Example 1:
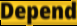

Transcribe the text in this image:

Depend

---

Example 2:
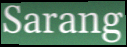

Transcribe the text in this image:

Sarang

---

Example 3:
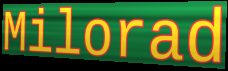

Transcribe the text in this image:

Milorad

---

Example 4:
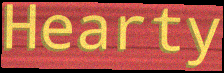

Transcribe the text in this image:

Hearty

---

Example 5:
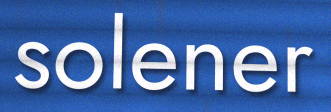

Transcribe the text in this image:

solener